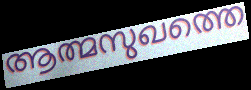
ആത്മസുഖത്തെ